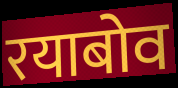
रयाबोव